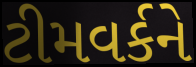
ટીમવર્કને